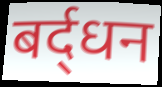
बर्द्धन